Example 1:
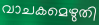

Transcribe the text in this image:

വാചകമെഴുതി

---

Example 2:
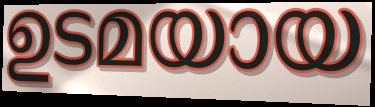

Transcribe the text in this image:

ഉടമയായ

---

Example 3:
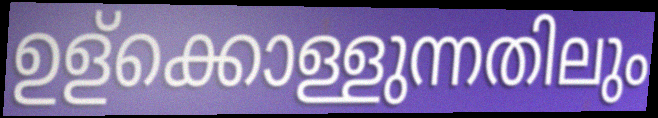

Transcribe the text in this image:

ഉള്ക്കൊള്ളുന്നതിലും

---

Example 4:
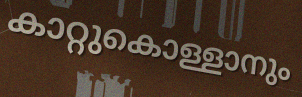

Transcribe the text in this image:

കാറ്റുകൊള്ളാനും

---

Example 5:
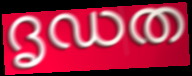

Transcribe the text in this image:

ദൃഡത